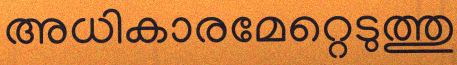
അധികാരമേറ്റെടുത്തു